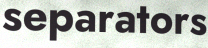
separators